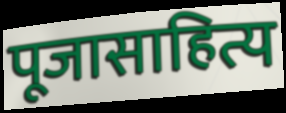
पूजासाहित्य